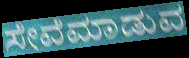
ಸೇವೆಮಾಡುವ